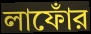
লাফোঁর